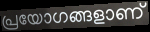
പ്രയോഗങ്ങളാണ്